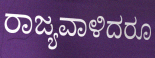
ರಾಜ್ಯವಾಳಿದರೂ